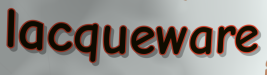
lacqueware